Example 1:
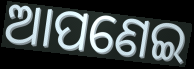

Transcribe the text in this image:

ଆପଣେଇ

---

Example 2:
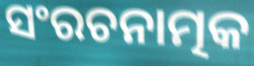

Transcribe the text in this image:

ସଂରଚନାତ୍ମକ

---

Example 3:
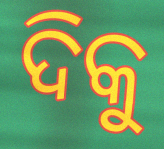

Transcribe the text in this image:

ଦିକୁ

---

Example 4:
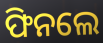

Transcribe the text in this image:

ଫିନଲେ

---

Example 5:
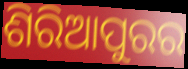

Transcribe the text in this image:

ଶିରିଆପୁରର